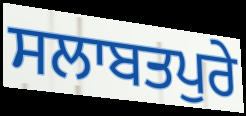
ਸਲਾਬਤਪੁਰੇ